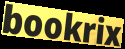
bookrix